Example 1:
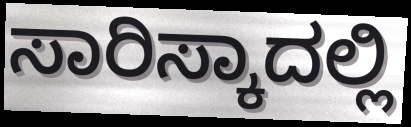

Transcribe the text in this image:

ಸಾರಿಸ್ಕಾದಲ್ಲಿ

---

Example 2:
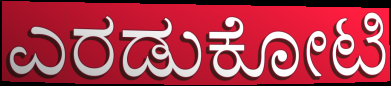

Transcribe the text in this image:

ಎರಡುಕೋಟಿ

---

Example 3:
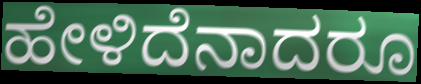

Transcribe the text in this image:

ಹೇಳಿದೆನಾದರೂ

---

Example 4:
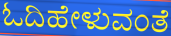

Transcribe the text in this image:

ಓದಿಹೇಳುವಂತೆ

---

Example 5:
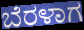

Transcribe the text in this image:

ಬೆರಳಾಗ